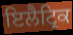
ਇਲੈਟ੍ਰਿਕ